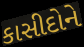
કાસીદોને